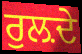
ਰੁਲ਼ਦੇ